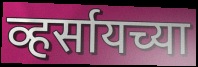
व्हर्सायच्या